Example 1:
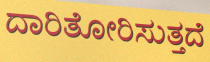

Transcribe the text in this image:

ದಾರಿತೋರಿಸುತ್ತದೆ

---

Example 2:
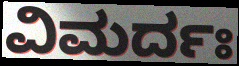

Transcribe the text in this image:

ವಿಮರ್ದಃ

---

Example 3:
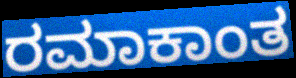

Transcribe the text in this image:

ರಮಾಕಾಂತ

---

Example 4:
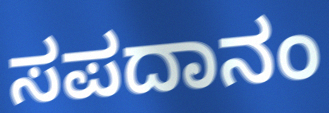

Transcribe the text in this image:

ಸಪದಾನಂ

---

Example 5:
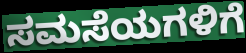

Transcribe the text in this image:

ಸಮಸೆಯಗಳಿಗೆ